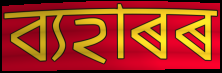
ব্যহাৰৰ